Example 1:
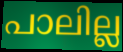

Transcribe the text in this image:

പാലില്ല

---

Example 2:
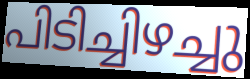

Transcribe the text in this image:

പിടിച്ചിഴച്ചു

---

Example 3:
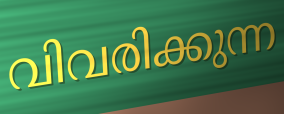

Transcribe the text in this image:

വിവരിക്കുന്ന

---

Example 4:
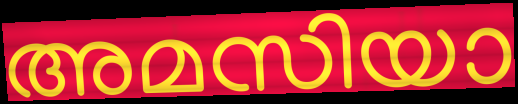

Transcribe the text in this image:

അമസിയാ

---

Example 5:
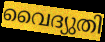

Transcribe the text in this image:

വൈദ്യുതി